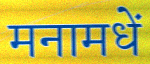
मनामधें